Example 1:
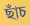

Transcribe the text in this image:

ছাঁচ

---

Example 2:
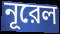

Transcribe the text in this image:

নূরেল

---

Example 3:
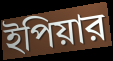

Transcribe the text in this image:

ইপিয়ার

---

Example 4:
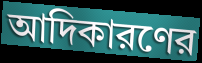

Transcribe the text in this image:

আদিকারণের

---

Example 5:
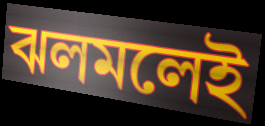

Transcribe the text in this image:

ঝলমলেই